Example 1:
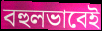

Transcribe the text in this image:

বহুলভাবেই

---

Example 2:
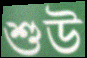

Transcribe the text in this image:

শুউ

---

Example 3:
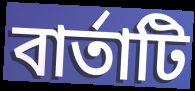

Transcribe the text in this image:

বার্তাটি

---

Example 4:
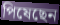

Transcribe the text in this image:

পিষেছেন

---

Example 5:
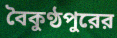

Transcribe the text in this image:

বৈকুণ্ঠপুরের